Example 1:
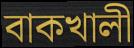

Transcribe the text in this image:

বাকখালী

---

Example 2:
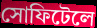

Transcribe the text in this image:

সোফিটেলে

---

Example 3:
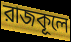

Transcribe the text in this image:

রাজকূলে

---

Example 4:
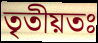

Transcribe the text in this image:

তৃতীয়তঃ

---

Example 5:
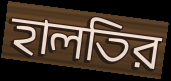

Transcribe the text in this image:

হালতির